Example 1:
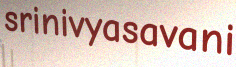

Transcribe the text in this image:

srinivyasavani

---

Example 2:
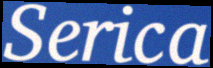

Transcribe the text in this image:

Serica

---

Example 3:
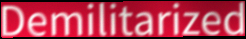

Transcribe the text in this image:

Demilitarized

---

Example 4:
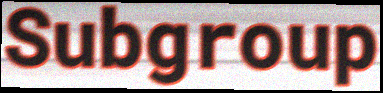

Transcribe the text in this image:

Subgroup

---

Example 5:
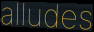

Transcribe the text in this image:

alludes